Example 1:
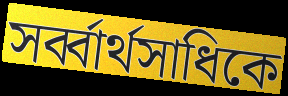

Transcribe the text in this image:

সর্ব্বার্থসাধিকে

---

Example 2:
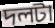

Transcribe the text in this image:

দলটা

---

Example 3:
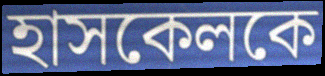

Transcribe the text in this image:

হাসকেলকে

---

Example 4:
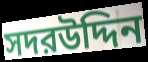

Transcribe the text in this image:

সদরউদ্দিন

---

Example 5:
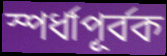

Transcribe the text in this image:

স্পর্ধাপূর্বক